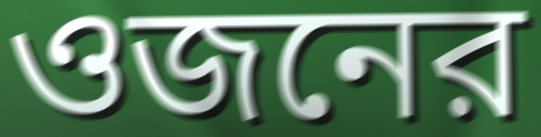
ওজনের